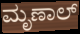
ಮೃಣಾಲ್